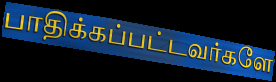
பாதிக்கப்பட்டவர்களே